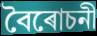
বৈৰোচনী